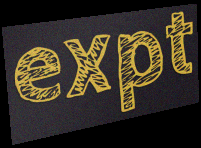
expt